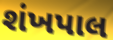
શંખપાલ